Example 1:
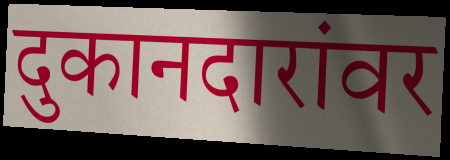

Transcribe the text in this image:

दुकानदारांवर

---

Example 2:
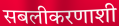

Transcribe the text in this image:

सबलीकरणाशी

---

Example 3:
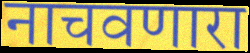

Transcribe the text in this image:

नाचवणारा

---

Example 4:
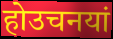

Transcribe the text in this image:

होउचनयां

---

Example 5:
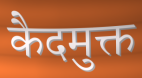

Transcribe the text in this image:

कैदमुक्त